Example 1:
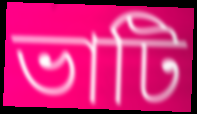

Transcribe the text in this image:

ভাটি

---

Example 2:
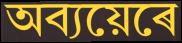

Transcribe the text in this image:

অব্যয়েৰে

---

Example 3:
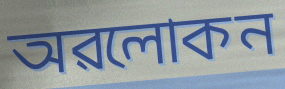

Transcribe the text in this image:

অৱলোকন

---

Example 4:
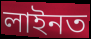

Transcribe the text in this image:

লাইনত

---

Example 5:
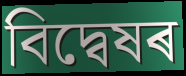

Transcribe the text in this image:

বিদ্বেষৰ